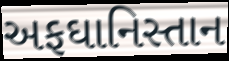
અફઘાનિસ્તાન